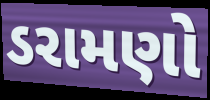
ડરામણો